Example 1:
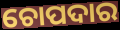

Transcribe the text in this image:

ଚୋପଦାର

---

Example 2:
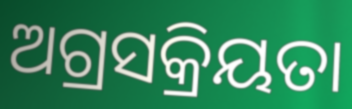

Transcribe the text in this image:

ଅଗ୍ରସକ୍ରିୟତା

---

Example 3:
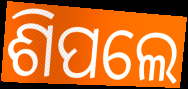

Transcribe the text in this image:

ଶିପଲେ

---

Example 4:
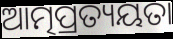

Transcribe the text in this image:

ଆତ୍ମପ୍ରତ୍ୟୟତା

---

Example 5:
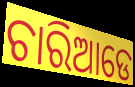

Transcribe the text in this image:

ଚାରିଆଡେ